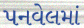
પનવેલમાં